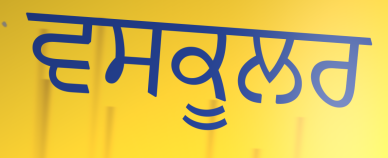
ਵਸਕੂਲਰ